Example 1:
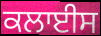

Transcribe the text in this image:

ਕਲਾਈਸ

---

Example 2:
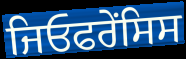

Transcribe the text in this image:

ਜਿਓਫਰੇਂਸਿਸ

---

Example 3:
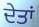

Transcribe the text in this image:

ਦੇਤਾਂ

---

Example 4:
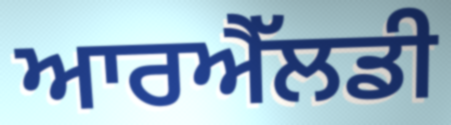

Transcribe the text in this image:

ਆਰਐੱਲਡੀ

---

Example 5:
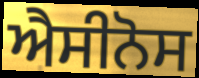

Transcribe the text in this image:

ਐਸੀਨੋਸ